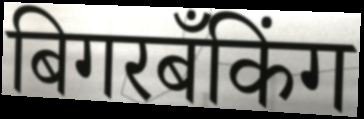
बिगरबँकिंग